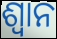
ଶ୍ଵାନ